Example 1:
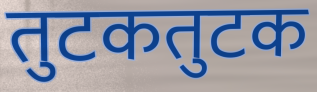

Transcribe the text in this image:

तुटकतुटक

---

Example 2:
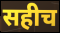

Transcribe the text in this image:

सहीच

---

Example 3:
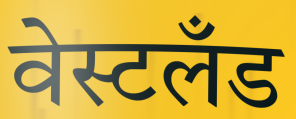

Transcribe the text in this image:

वेस्टलँड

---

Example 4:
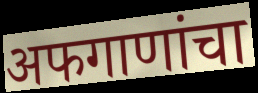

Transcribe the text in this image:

अफगाणांचा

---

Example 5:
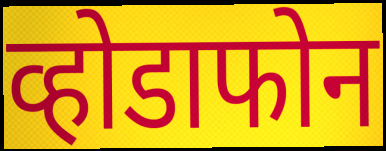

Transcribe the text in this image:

व्होडाफोन